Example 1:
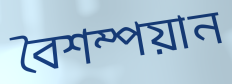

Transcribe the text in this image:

বৈশম্পয়ান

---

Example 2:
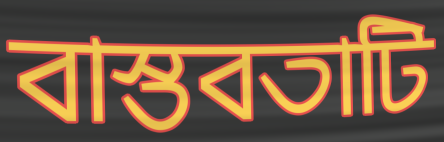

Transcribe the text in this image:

বাস্তবতাটি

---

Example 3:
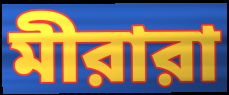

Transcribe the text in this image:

মীরারা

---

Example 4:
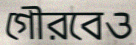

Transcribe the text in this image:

গৌরবেও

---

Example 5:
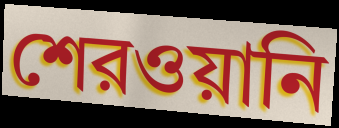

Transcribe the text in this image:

শেরওয়ানি